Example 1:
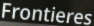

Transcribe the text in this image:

Frontieres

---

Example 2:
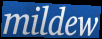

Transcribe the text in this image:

mildew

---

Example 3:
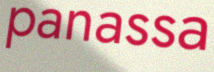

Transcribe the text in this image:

panassa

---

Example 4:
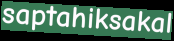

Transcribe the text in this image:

saptahiksakal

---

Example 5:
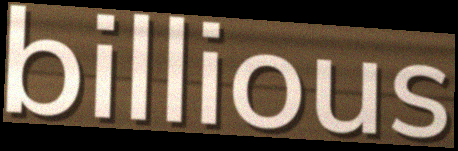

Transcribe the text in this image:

billious